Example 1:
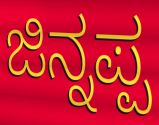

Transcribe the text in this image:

ಜಿನ್ನಪ್ಪ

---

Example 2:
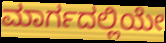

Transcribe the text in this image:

ಮಾರ್ಗದಲ್ಲಿಯೇ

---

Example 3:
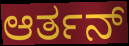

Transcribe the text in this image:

ಆರ್ತನ್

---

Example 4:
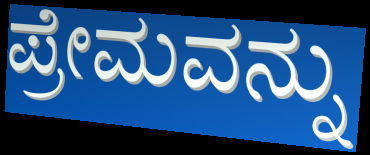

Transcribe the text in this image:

ಪ್ರೇಮವನ್ನು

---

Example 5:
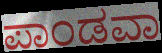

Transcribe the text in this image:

ಪಾಂಡವಾ